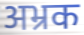
अभ्रक